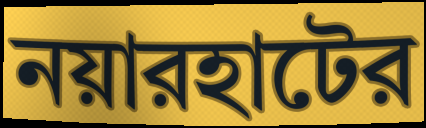
নয়ারহাটের